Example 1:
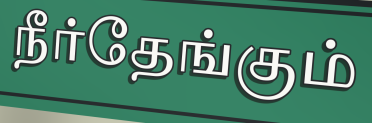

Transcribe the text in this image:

நீர்தேங்கும்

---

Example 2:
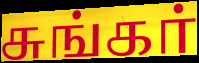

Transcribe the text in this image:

சுங்கர்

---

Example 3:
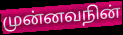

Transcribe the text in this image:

முன்னவநின்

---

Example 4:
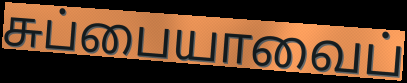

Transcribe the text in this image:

சுப்பையாவைப்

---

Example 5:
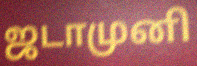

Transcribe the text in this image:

ஜடாமுனி